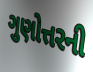
ગુણોત્તરની